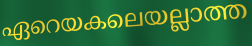
ഏറെയകലെയല്ലാത്ത